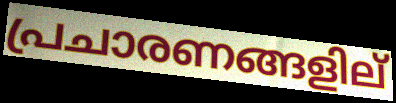
പ്രചാരണങ്ങളില്